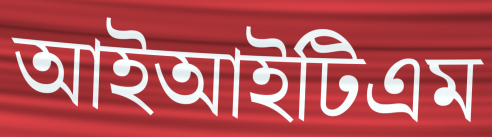
আইআইটিএম